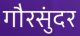
गौरसुंदर